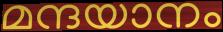
മന്ദയാനം